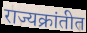
राज्यक्रांतीत